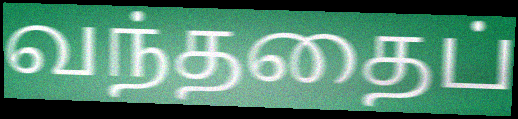
வந்ததைப்